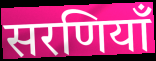
सरणियाँ